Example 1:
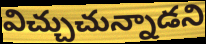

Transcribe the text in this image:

విచ్చుచున్నాడని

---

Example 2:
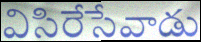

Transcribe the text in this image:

విసిరేసేవాడు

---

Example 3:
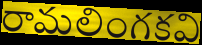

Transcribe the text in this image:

రామలింగకవి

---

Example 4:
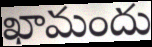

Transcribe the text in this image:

ఖామందు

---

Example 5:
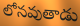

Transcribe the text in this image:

లోనవుతాడు